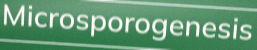
Microsporogenesis